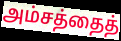
அம்சத்தைத்